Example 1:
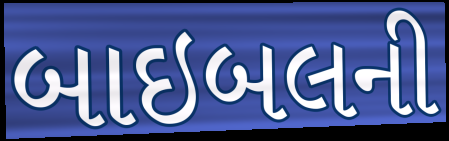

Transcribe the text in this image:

બાઇબલની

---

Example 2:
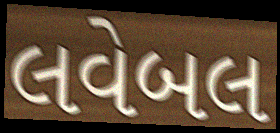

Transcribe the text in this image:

લવેબલ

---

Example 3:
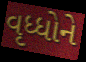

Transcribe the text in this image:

વૃધ્ધોને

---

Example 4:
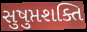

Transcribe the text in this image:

સુષુપ્તશક્તિ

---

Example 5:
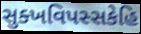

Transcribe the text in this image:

સુક્ખવિપસ્સકેહિ